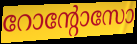
റോന്റോസോ